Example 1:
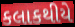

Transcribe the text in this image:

કલાકથીયે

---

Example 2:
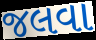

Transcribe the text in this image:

જલવા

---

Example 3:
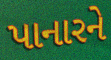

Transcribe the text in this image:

પાનારને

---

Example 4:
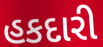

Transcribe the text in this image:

હકદારી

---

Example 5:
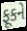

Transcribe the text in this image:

ફૂકને